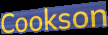
Cookson